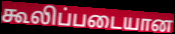
கூலிப்படையான